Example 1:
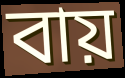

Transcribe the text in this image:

বায়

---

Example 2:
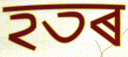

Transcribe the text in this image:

হতৰ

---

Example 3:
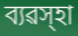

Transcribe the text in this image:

ব্যৱস্হা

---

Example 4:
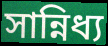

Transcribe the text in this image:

সান্নিধ্য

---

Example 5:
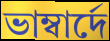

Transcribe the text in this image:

ভাম্বাৰ্দে